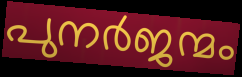
പുനർജന്മം